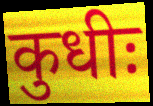
कुधीः